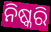
ନିଷ୍କରି